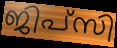
ജിപ്സി